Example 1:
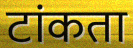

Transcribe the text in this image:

टांकता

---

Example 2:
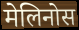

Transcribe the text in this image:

मेलिनोस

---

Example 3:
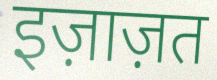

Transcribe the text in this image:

इज़ाज़त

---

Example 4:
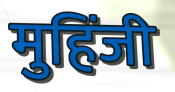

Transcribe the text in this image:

मुहिंजी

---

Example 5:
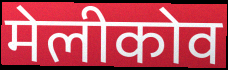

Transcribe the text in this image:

मेलीकोव